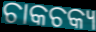
ଚାକଚକ୍ୟ